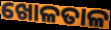
ଖୋଳତାଳ